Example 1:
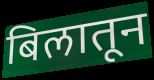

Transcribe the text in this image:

बिलातून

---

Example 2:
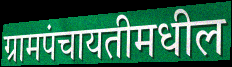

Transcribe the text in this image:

ग्रामपंचायतीमधील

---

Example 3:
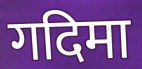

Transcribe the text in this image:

गदिमा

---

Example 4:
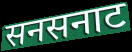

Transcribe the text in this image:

सनसनाट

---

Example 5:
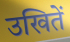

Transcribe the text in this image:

उखितें